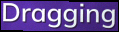
Dragging